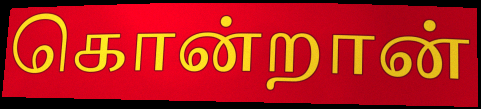
கொன்றான்